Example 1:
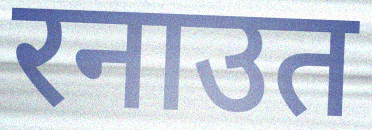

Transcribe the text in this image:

रनाउत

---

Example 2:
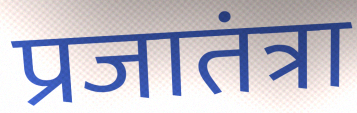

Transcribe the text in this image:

प्रजातंत्रा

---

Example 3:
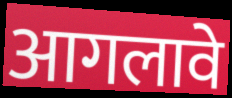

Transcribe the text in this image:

आगलावे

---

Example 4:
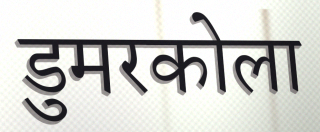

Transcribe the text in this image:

डुमरकोला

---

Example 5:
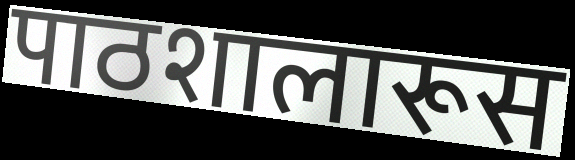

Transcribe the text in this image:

पाठशालारूस